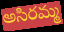
అసిరమ్మ